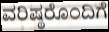
ವರಿಷ್ಠರೊಂದಿಗೆ